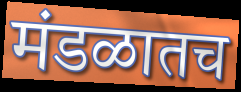
मंडळातच